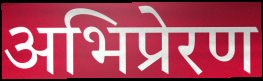
अभिप्रेरण